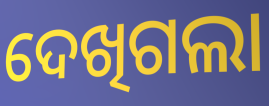
ଦେଖିଗଲା